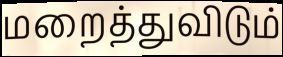
மறைத்துவிடும்